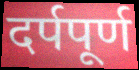
दर्पपूर्ण